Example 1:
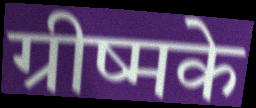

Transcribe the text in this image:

ग्रीष्मके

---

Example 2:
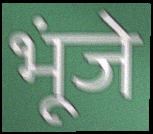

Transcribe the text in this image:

भूंजे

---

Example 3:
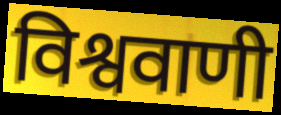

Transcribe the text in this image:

विश्ववाणी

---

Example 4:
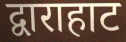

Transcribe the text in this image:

द्वाराहाट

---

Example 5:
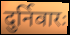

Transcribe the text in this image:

दुर्निवारः